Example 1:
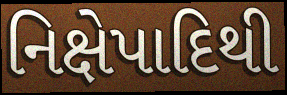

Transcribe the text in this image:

નિક્ષેપાદિથી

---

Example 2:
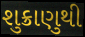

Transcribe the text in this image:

શુક્રાણુથી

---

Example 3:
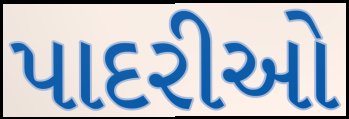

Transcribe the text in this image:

પાદરીઓ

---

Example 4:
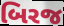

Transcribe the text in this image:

બિરજ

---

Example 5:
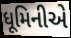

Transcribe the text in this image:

ધૂમિનીએ